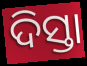
ଦିସ୍ତା